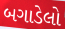
બગાડેલો